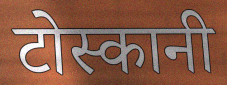
टोस्कानी